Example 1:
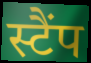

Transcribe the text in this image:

स्टैंप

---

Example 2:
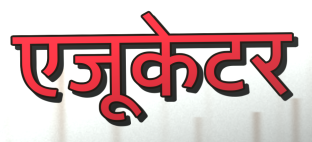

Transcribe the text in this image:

एजूकेटर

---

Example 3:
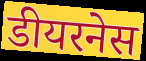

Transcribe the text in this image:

डीयरनेस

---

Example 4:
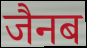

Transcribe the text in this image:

जैनब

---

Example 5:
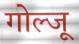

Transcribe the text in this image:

गोल्जू